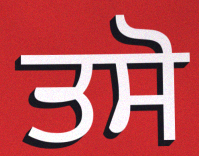
ਤਸੋ